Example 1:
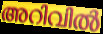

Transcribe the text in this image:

അറിവിൽ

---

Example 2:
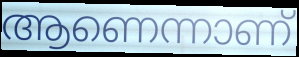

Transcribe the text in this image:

ആണെന്നാണ്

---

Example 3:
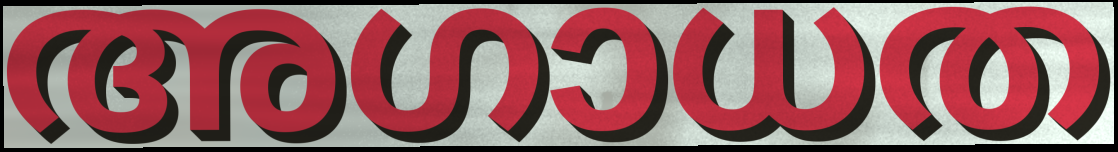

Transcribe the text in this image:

അഗാധത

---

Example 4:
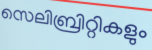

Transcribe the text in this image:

സെലിബ്രിറ്റികളും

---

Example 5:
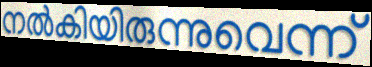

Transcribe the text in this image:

നൽകിയിരുന്നുവെന്ന്